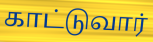
காட்டுவார்